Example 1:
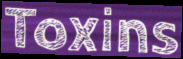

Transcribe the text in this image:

Toxins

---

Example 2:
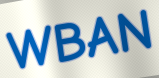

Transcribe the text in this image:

WBAN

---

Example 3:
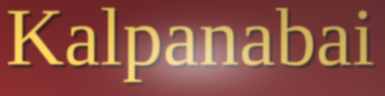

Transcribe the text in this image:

Kalpanabai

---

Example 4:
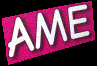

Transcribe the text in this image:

AME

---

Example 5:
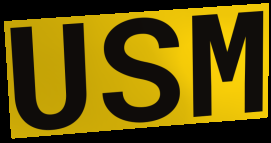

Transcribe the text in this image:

USM